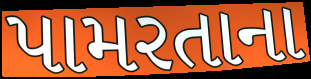
પામરતાના